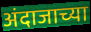
अंदाजाच्या